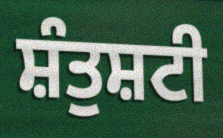
ਸ਼ੰਤੁਸ਼ਟੀ